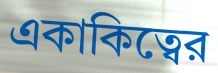
একাকিত্বের